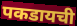
पकडायची